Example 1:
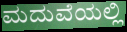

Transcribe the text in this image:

ಮದುವೆಯಲ್ಲಿ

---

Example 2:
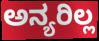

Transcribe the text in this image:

ಅನ್ಯರಿಲ್ಲ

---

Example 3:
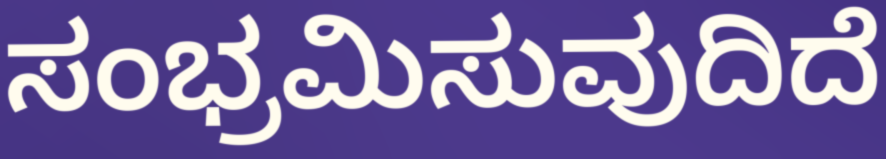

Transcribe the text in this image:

ಸಂಭ್ರಮಿಸುವುದಿದೆ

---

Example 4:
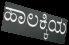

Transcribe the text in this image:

ಹಾಲಕ್ಕಿಯ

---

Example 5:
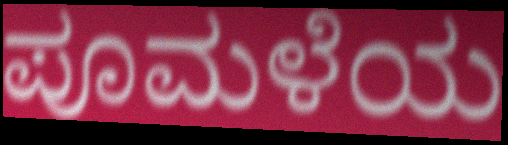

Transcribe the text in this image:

ಪೂಮಳೆಯ